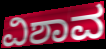
ವಿಶಾವ